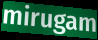
mirugam